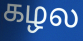
கழல